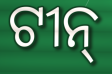
ଟୀନ୍